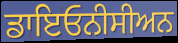
ਡਾਇਓਨੀਸੀਅਨ